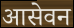
आसेवन